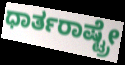
ಧಾರ್ತರಾಷ್ಟ್ರೇ